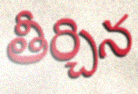
తీర్చిన